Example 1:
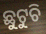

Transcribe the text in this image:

ଛୁଟୁଚି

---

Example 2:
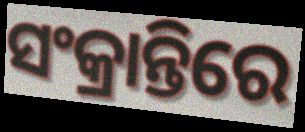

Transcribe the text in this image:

ସଂକ୍ରାନ୍ତିରେ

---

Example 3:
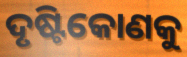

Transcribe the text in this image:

ଦୃଷ୍ଟିକୋଣକୁ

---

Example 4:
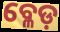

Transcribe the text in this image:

ବ୍ଳେଡ଼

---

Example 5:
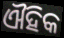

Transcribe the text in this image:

ଐହିକ